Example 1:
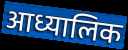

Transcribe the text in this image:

आध्यालिक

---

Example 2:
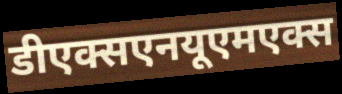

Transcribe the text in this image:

डीएक्सएनयूएमएक्स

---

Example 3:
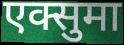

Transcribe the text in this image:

एक्सुमा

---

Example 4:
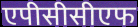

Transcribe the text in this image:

एपीसीसीएफ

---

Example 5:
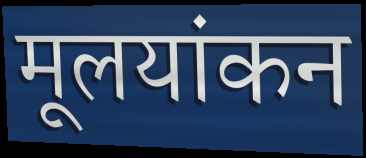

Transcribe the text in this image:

मूलयांकन